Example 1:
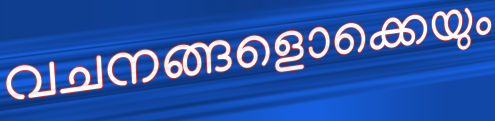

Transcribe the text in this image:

വചനങ്ങളൊക്കെയും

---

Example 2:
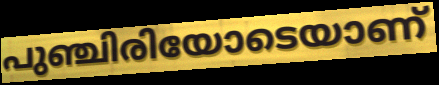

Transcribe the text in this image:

പുഞ്ചിരിയോടെയാണ്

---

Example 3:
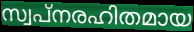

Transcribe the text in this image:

സ്വപ്നരഹിതമായ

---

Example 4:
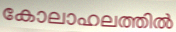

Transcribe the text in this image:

കോലാഹലത്തിൽ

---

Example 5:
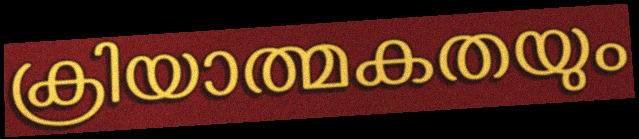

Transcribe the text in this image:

ക്രിയാത്മകതയും